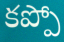
కప్పో